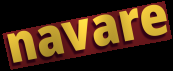
navare